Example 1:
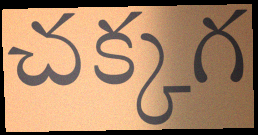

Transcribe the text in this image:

చక్కగ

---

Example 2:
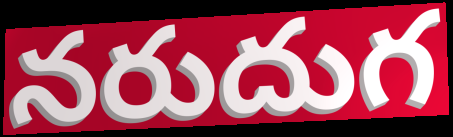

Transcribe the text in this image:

నరుదుగ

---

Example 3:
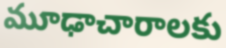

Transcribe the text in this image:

మూఢాచారాలకు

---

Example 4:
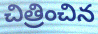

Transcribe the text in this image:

చిత్రించిన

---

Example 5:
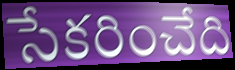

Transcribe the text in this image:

సేకరించేది